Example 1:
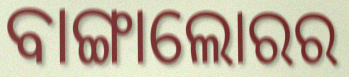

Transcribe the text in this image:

ବାଙ୍ଗାଲୋରର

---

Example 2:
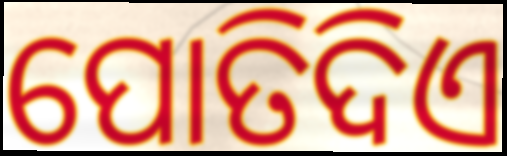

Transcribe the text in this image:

ପୋତିଦିଏ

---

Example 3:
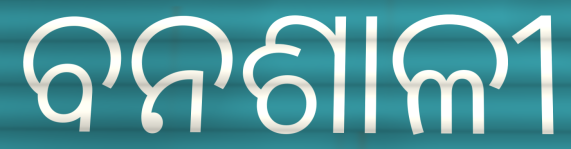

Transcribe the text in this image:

ବନଶାଳୀ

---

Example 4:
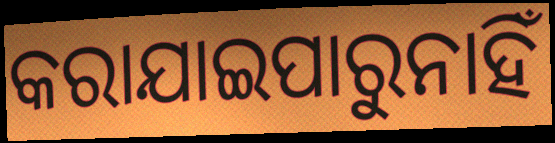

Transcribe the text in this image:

କରାଯାଇପାରୁନାହିଁ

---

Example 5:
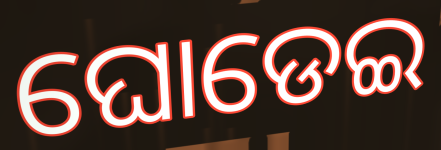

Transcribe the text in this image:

ଘୋଡେଇ